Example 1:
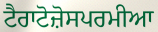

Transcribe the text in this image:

ਟੈਰਾਟੋਜ਼ੋਸਪਰਮੀਆ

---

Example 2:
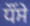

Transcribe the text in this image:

ਧੌਂਸੇ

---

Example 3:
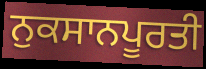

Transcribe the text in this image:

ਨੁਕਸਾਨਪੂਰਤੀ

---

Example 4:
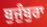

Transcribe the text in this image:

ਬੁਜੁੰਬੁਰਾ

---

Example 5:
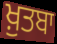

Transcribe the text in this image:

ਖ਼ੁਤਬਾ